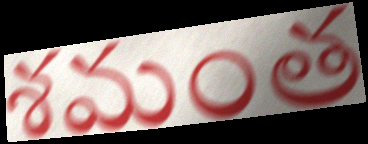
శమంత